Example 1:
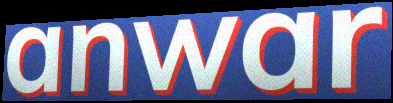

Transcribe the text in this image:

anwar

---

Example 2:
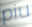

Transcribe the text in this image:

piu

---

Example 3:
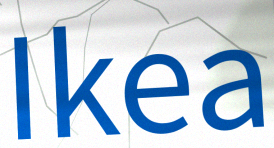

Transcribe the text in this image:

Ikea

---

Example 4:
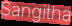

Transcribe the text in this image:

Sangitha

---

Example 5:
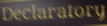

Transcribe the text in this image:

Declaratory